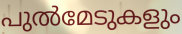
പുൽമേടുകളും